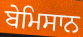
ਬੇਮਿਸਾਨ